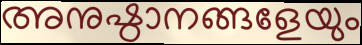
അനുഷ്ഠാനങ്ങളേയും